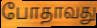
போதாவது